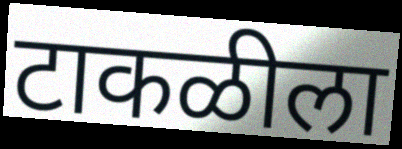
टाकळीला